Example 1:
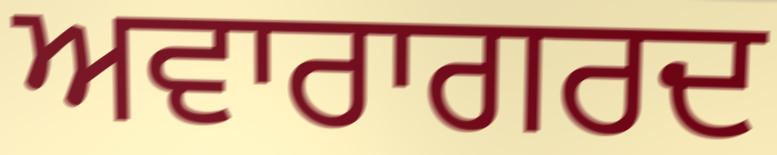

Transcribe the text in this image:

ਅਵਾਰਾਗਰਦ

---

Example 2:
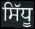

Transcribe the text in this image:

ਸਿੱਧੂ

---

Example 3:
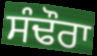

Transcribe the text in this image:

ਸੰਢੌਰਾ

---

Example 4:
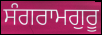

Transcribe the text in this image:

ਸੰਗਰਾਮਗੁਰੂ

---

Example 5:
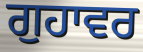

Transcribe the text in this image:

ਗੁਹਾਵਰ